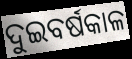
ଦୁଇବର୍ଷକାଳ